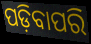
ପଡ଼ିବାପରି